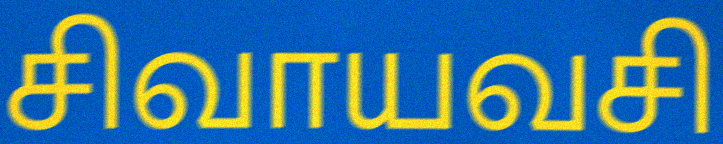
சிவாயவசி